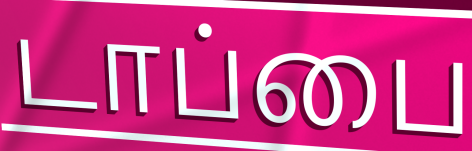
டாப்பை